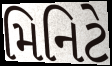
મિનિટે